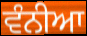
ਵੰਨੀਆ